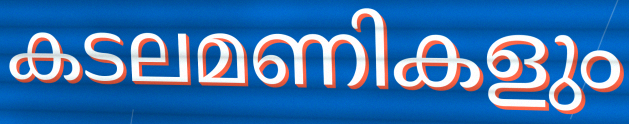
കടലമണികളും